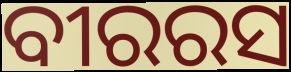
ବୀରରସ